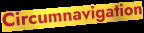
Circumnavigation